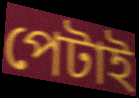
পেটাই